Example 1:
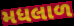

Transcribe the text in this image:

મધલાળ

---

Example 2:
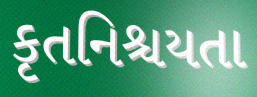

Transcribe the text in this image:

કૃતનિશ્ચયતા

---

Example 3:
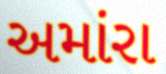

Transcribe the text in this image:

અમાંરા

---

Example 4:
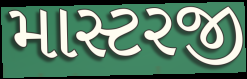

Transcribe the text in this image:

માસ્ટરજી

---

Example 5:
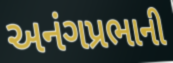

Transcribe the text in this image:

અનંગપ્રભાની